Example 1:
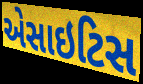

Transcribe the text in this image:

એસાઇટિસ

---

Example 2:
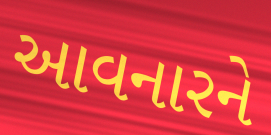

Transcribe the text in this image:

આવનારને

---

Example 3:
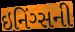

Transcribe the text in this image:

ઇનિંગ્સની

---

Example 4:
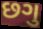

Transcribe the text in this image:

છગુ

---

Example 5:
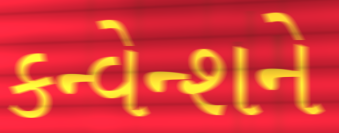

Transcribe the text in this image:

કન્વેન્શને